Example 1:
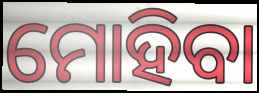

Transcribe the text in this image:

ମୋହିବା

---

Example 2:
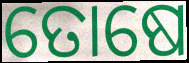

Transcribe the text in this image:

ତୋଷେ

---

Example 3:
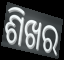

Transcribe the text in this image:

ଶିଖର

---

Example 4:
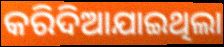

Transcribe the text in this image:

କରିଦିଆଯାଇଥିଲା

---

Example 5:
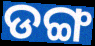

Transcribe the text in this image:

ଡଙ୍ଗ